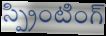
స్ప్రింటింగ్